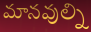
మానవుల్ని